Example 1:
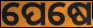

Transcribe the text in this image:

ପେଷେ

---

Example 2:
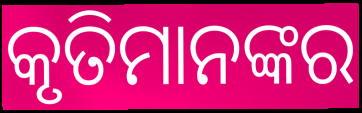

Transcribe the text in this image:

କୃତିମାନଙ୍କର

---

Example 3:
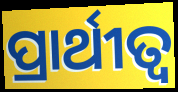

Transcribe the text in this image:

ପ୍ରାର୍ଥୀତ୍ଵ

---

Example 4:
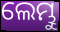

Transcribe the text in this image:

ଲେମ୍ଭୁ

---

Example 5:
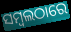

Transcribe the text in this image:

ସମ୍ବଲଠାରେ